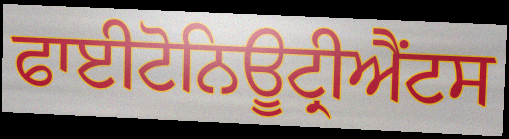
ਫਾਈਟੋਨਿਊਟ੍ਰੀਐਂਟਸ